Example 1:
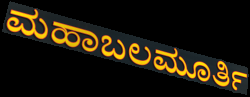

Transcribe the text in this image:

ಮಹಾಬಲಮೂರ್ತಿ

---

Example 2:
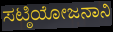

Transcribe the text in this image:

ಸಟ್ಠಿಯೋಜನಾನಿ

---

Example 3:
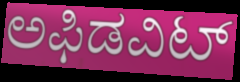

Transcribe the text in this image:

ಅಫಿಡವಿಟ್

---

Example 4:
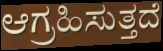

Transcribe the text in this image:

ಆಗ್ರಹಿಸುತ್ತದೆ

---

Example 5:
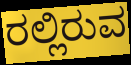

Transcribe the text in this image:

ರಲ್ಲಿರುವ